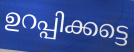
ഉറപ്പിക്കട്ടെ